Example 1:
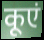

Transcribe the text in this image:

कूएं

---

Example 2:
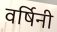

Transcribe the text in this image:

वर्षिनी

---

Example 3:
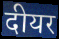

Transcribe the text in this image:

दीयर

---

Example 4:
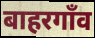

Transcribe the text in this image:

बाहरगाँव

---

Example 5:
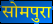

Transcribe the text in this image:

सोमपुरा